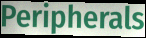
Peripherals